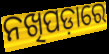
ନଖିପଡ଼ାରେ